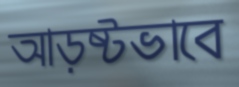
আড়ষ্টভাবে